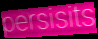
persisits